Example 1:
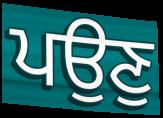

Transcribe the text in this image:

ਪਉਣੁ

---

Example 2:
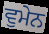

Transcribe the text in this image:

ਵੁਮੇਨ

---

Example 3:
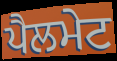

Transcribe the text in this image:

ਪੈਲਮੇਟ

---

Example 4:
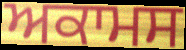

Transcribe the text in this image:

ਅਕਾਮਸ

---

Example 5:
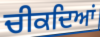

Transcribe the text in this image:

ਚੀਕਦਿਆਂ